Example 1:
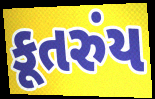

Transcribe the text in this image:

કૂતરુંય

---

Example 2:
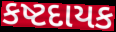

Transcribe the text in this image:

કષ્ટદાયક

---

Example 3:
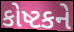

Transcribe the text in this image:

કોષ્ટકને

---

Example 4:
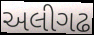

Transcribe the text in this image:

અલીગઢ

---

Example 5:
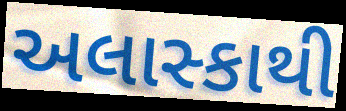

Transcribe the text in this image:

અલાસ્કાથી